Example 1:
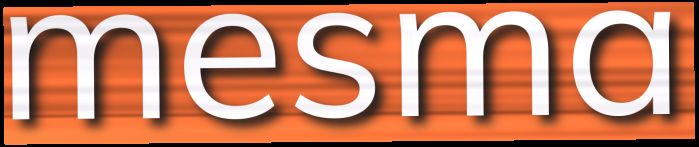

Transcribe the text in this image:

mesma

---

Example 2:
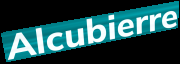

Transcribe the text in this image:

Alcubierre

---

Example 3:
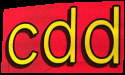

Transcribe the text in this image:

cdd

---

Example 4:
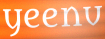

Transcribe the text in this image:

yeenu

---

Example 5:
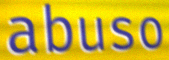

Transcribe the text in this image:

abuso